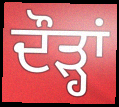
ਦੌੜ੍ਹਾਂ